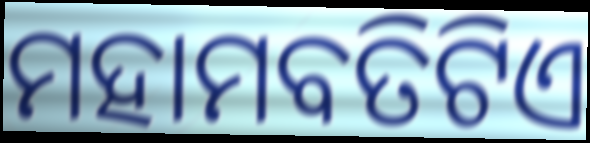
ମହାମବତିଟିଏ